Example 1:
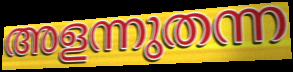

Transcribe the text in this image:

അളന്നുതന്ന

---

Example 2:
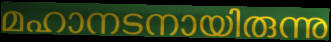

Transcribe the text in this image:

മഹാനടനായിരുന്നു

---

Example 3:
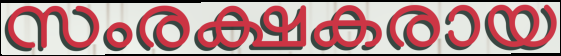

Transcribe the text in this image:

സംരക്ഷകരായ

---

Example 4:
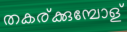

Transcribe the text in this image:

തകര്ക്കുമ്പോള്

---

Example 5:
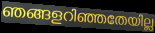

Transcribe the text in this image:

ഞങ്ങളറിഞ്ഞതേയില്ല